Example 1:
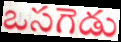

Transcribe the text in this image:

ఒసగెడు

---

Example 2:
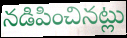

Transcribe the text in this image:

నడిపించినట్లు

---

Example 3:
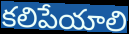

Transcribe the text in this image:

కలిపేయాలి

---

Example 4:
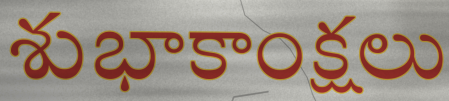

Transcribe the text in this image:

శుభాకాంక్షలు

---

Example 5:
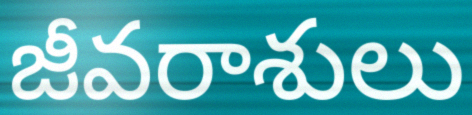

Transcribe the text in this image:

జీవరాశులు